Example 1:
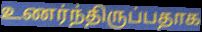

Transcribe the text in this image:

உணர்ந்திருப்பதாக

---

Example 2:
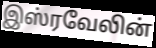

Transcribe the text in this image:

இஸ்ரவேலின்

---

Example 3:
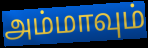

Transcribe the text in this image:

அம்மாவும்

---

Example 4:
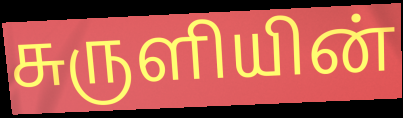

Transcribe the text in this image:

சுருளியின்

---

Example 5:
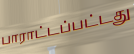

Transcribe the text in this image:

பாராட்டப்பட்டது